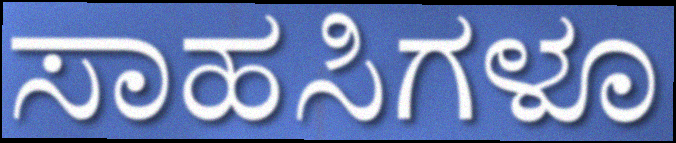
ಸಾಹಸಿಗಳೂ